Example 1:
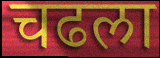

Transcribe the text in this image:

चढला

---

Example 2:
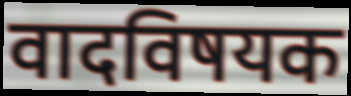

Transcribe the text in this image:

वादविषयक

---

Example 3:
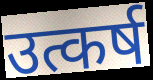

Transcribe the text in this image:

उत्कर्ष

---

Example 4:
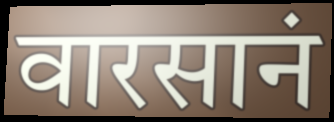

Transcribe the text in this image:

वारसानं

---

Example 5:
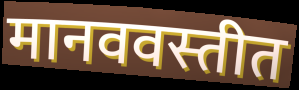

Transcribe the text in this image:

मानववस्तीत